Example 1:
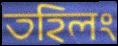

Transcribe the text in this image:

তহিলং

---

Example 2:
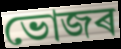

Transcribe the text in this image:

ভোজৰ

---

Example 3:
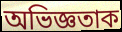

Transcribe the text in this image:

অভিজ্ঞতাক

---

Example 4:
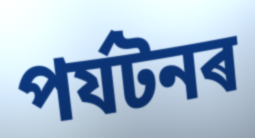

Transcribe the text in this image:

পৰ্যটনৰ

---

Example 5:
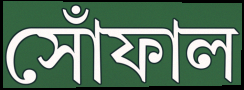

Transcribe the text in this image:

সোঁফাল